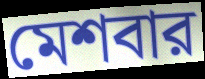
মেশবার